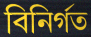
বিনির্গত